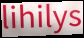
lihilys